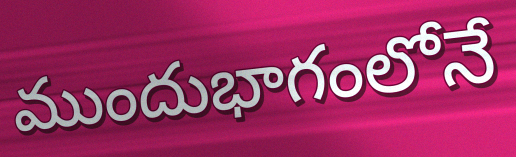
ముందుభాగంలోనే